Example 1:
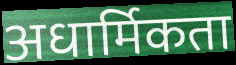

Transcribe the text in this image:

अधार्मिकता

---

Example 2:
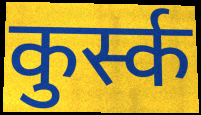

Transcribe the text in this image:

कुर्स्क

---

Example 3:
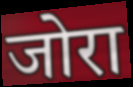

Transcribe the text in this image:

जोरा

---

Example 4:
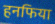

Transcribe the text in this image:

हनफिया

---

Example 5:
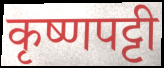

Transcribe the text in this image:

कृष्णपट्टी